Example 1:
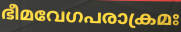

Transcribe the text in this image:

ഭീമവേഗപരാക്രമഃ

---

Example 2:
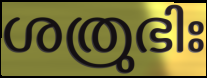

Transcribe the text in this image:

ശത്രുഭിഃ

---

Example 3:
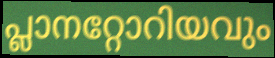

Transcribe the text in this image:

പ്ലാനറ്റോറിയവും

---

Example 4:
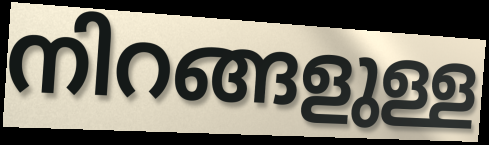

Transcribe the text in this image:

നിറങ്ങളുള്ള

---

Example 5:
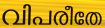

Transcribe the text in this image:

വിപരീതേ